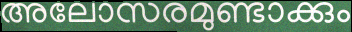
അലോസരമുണ്ടാക്കും